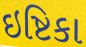
ઇષ્ટિકા